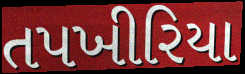
તપખીરિયા